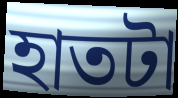
হাতটা